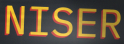
NISER